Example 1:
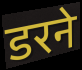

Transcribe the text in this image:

डरने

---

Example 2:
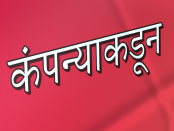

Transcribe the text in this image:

कंपन्याकडून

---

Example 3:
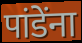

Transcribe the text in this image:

पांडेंना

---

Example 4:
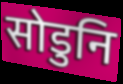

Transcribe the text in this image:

सोडुनि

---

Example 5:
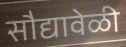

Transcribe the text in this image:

सौद्यावेळी